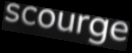
scourge